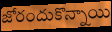
జోరందుకొన్నాయి